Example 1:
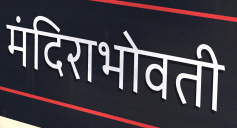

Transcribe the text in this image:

मंदिराभोवती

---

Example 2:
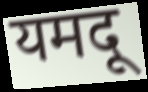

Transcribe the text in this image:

यमदू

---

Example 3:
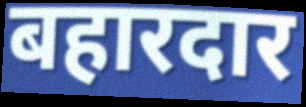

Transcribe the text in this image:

बहारदार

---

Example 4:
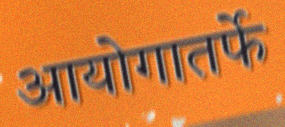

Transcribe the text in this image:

आयोगातर्फे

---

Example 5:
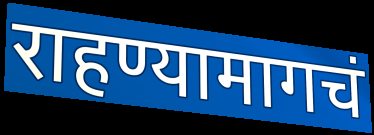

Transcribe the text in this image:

राहण्यामागचं